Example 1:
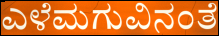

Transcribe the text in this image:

ಎಳೆಮಗುವಿನಂತೆ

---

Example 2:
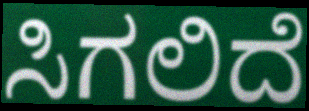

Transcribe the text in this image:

ಸಿಗಲಿದೆ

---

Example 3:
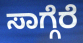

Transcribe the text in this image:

ಸಾಗ್ಗೆರೆ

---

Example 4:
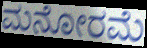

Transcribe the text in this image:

ಮನೋರಮೆ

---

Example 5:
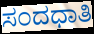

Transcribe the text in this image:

ಸಂದಧಾತಿ